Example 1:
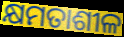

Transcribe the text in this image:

କ୍ଷମତାଶୀଳ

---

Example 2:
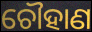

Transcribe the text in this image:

ଚୌହାଣ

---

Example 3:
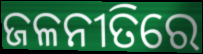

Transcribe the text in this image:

ଜଳନୀତିରେ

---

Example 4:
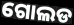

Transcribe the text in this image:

ଗୋଲଡ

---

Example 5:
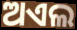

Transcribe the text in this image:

ଅଏଲ